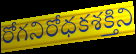
రోగనిరోధకశక్తిని